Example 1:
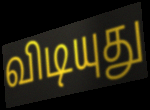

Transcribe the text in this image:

விடியுது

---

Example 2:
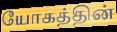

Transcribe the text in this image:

யோகத்தின்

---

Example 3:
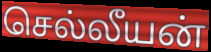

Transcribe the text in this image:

செல்லீயன்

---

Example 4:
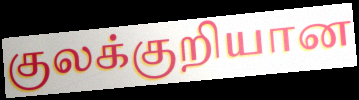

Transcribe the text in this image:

குலக்குறியான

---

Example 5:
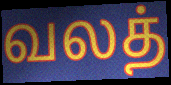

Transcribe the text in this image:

வலத்